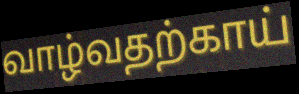
வாழ்வதற்காய்